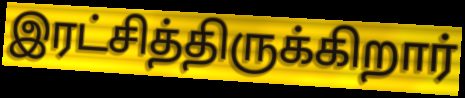
இரட்சித்திருக்கிறார்